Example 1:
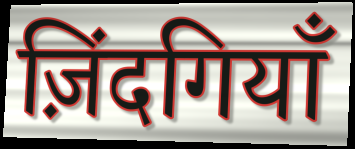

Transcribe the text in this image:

ज़िंदगियाँ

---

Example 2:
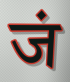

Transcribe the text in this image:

जं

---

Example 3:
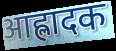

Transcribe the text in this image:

आह्लादक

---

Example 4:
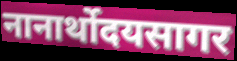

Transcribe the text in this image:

नानार्थोदयसागर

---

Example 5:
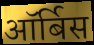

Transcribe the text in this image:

ऑर्बिस